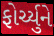
ફોર્ચ્યુને